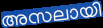
അസലായി